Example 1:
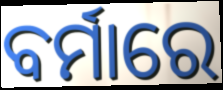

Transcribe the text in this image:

ବର୍ମାରେ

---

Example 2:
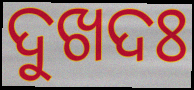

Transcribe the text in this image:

ଦୁଖଦଃ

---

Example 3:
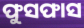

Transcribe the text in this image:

ଫୁସଫାସ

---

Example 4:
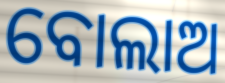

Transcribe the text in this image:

ବୋଲାଅ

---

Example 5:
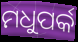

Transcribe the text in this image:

ମଧୁପର୍କ